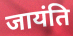
जायंति